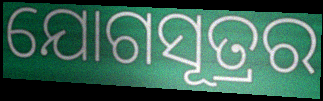
ଯୋଗସୂତ୍ରର